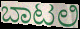
ಬಾಟಲಿ